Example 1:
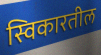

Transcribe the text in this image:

स्विकारतील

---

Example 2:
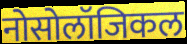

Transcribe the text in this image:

नोसोलॉजिकल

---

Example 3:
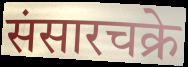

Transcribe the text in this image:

संसारचक्रे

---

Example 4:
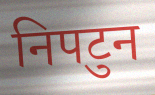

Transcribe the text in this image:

निपटुन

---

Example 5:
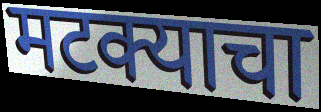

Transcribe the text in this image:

मटक्याचा